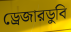
ড্রেজারডুবি